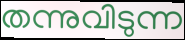
തന്നുവിടുന്ന